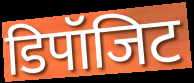
डिपॉजिट